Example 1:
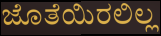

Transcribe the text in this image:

ಜೊತೆಯಿರಲಿಲ್ಲ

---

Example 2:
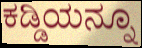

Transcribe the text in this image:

ಕಡ್ಡಿಯನ್ನೂ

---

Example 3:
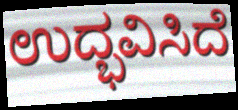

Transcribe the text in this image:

ಉದ್ಭವಿಸಿದೆ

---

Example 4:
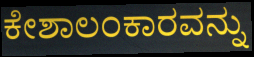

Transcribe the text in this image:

ಕೇಶಾಲಂಕಾರವನ್ನು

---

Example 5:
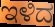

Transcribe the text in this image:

ಇಳಿದ